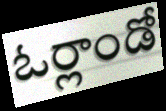
ఓర్లాండో